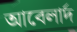
আবেলার্দ